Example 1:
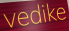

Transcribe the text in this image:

vedike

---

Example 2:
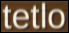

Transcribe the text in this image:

tetlo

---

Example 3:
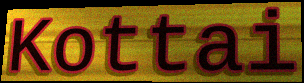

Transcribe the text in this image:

Kottai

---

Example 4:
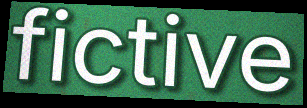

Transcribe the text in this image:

fictive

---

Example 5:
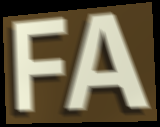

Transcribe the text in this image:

FA